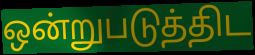
ஒன்றுபடுத்திட